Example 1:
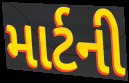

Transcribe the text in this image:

માર્ટની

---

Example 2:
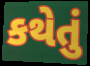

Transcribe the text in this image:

કથેતું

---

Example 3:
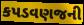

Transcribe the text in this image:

કપડવણજની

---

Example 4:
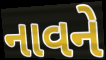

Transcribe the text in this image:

નાવને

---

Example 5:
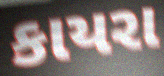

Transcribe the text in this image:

કાયરા